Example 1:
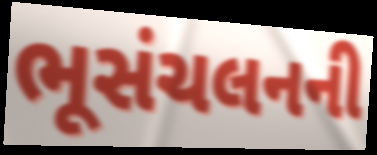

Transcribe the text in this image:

ભૂસંચલનની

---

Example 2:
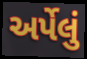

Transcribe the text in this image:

અર્પેલું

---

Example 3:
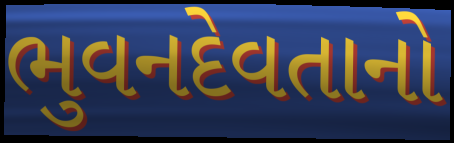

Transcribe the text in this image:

ભુવનદેવતાનો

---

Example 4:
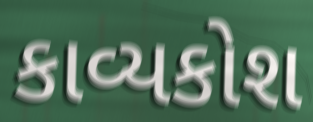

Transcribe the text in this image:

કાવ્યકોશ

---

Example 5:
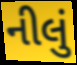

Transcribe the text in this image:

નીલું